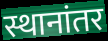
स्थानांतर